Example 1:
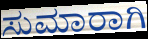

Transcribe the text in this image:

ಸುಮಾರಾಗಿ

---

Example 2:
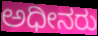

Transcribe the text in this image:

ಅಧೀನರು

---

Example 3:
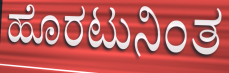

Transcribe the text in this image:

ಹೊರಟುನಿಂತ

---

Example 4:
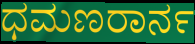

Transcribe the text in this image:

ಧಮಣರಾರ್ನ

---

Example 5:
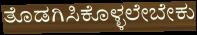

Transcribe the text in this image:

ತೊಡಗಿಸಿಕೊಳ್ಳಲೇಬೇಕು